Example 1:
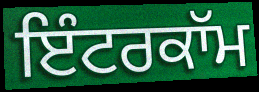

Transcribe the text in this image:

ਇੰਟਰਕਾੱਮ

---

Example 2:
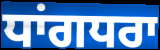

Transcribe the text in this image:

ਧਾਂਗਧਰਾ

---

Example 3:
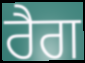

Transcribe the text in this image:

ਰੈਗ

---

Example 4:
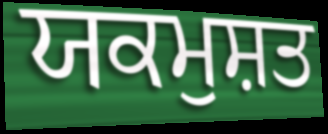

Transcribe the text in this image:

ਯਕਮੁਸ਼ਤ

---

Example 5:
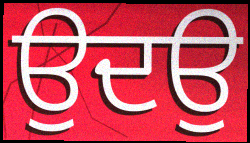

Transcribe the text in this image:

ਉਦਉ